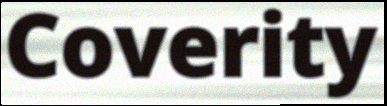
Coverity